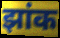
झांक